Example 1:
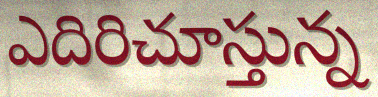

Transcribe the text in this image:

ఎదిరిచూస్తున్న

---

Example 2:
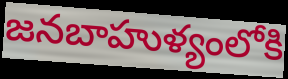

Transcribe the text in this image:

జనబాహుళ్యంలోకి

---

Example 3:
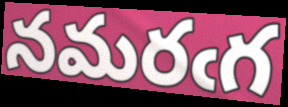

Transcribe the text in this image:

నమరఁగ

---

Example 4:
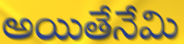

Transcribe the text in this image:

అయితేనేమి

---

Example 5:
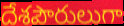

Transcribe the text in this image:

దేశపౌరులుగా